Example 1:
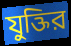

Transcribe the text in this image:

যুক্তির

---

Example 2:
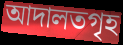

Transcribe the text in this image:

আদালতগৃহ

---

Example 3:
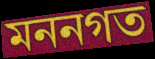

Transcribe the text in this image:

মননগত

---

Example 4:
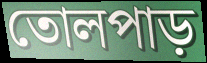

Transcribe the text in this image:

তোলপাড়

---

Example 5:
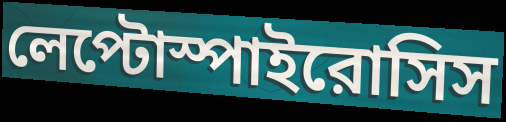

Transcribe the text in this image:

লেপ্টোস্পাইরোসিস